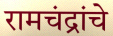
रामचंद्रांचे